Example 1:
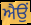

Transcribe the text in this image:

ਐਉਂ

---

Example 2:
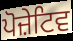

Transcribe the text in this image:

ਪੋਜ਼ੇਟਿਵ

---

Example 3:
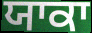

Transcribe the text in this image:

ਯਾਕਾ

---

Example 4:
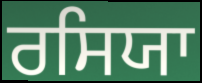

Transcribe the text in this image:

ਰਸਿਯਾ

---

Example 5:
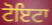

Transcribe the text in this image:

ਟੋਇਟਾ